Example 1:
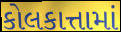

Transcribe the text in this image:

કોલકાત્તામાં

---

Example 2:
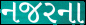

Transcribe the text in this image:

નજરના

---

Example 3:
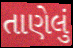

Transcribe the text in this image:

તાણેલું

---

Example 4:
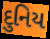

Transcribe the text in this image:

દુનિય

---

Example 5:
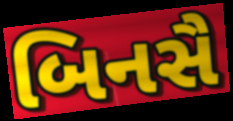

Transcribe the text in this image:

બિનસૈ